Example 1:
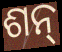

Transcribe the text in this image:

ଶନ୍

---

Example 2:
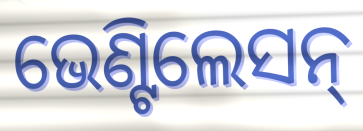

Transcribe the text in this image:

ଭେଣ୍ଟିଲେସନ୍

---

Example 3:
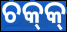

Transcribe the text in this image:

ଚକ୍‌କ୍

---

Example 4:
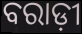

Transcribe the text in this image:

ବରାଡ଼ୀ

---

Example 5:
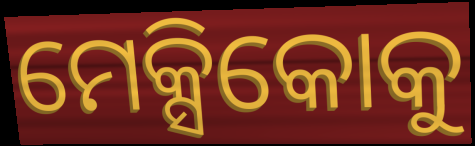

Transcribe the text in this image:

ମେକ୍ସିକୋକୁ